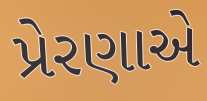
પ્રેરણાએ